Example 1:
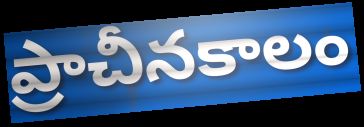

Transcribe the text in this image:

ప్రాచీనకాలం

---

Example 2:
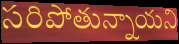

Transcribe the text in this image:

సరిపోతున్నాయని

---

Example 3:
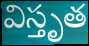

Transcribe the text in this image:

విస్తృత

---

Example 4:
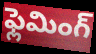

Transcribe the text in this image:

ఫ్లెమింగ్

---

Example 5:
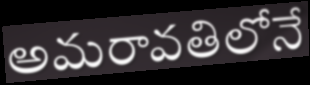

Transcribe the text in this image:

అమరావతిలోనే